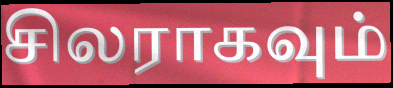
சிலராகவும்